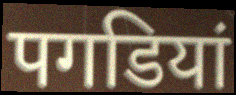
पगडियां